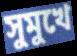
সুমুখে